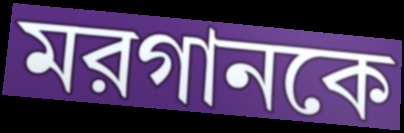
মরগানকে